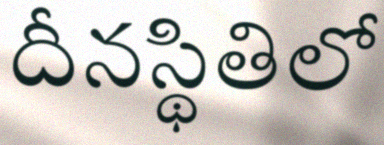
దీనస్థితిలో